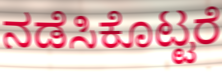
ನಡೆಸಿಕೊಟ್ಟರೆ